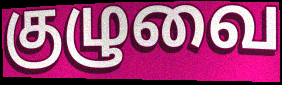
குழுவை